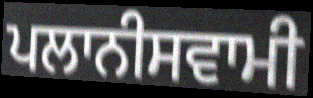
ਪਲਾਨੀਸਵਾਮੀ